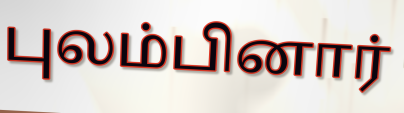
புலம்பினார்